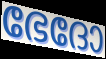
ഭേദോ